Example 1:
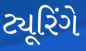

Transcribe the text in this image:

ટ્યૂરિંગે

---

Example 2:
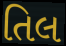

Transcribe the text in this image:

તિલ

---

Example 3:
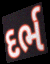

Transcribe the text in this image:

દર્ભ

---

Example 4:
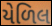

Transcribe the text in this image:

યેળિલ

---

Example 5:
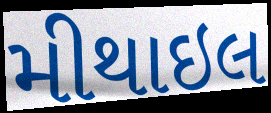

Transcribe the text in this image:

મીથાઇલ